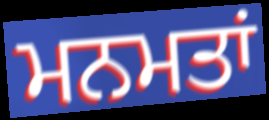
ਮਨਮਤਾਂ